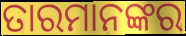
ତାରମାନଙ୍କର